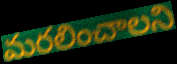
మరలించాలని